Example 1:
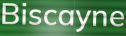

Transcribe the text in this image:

Biscayne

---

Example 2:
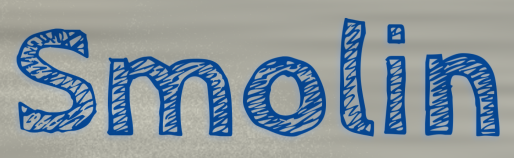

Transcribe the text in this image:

Smolin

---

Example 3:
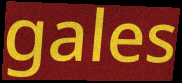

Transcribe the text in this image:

gales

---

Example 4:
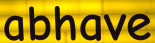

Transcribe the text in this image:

abhave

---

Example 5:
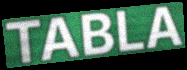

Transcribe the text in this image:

TABLA